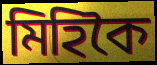
মিহিকৈ